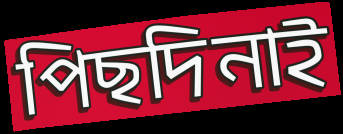
পিছদিনাই